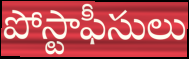
పోస్టాఫీసులు